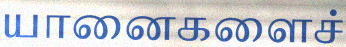
யானைகளைச்